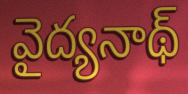
వైద్యనాథ్